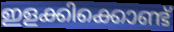
ഇളക്കിക്കൊണ്ട്